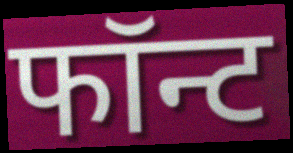
फॉन्ट